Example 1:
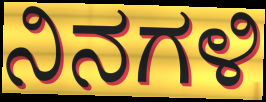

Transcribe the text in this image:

ನಿನಗಳಿ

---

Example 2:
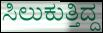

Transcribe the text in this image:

ಸಿಲುಕುತ್ತಿದ್ದ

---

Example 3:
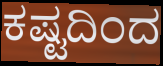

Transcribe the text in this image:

ಕಷ್ಟದಿಂದ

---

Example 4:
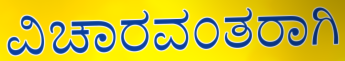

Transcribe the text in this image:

ವಿಚಾರವಂತರಾಗಿ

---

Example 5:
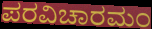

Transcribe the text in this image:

ಪರವಿಚಾರಮಂ